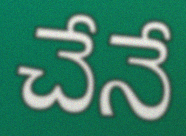
చేనే